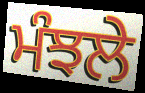
ਮੰਝਲੇ